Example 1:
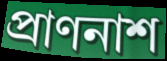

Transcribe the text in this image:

প্রাণনাশ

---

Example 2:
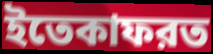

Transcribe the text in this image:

ইতেকাফরত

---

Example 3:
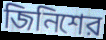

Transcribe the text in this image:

জিনিশের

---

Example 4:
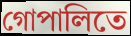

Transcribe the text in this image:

গোপালিতে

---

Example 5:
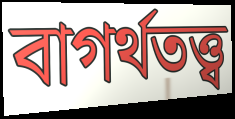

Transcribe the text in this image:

বাগর্থতত্ত্ব